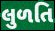
લુળતિ